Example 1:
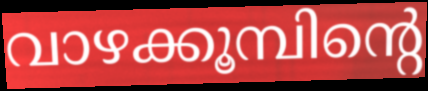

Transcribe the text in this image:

വാഴക്കൂമ്പിന്റെ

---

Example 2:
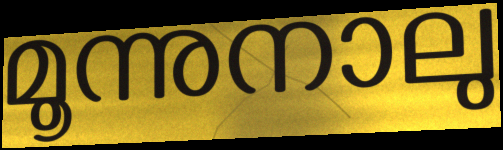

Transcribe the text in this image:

മൂന്നുനാലു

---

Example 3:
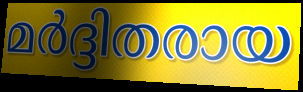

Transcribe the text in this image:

മർദ്ദിതരായ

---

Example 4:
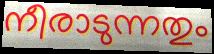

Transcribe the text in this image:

നീരാടുന്നതും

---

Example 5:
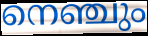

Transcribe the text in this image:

നെഞ്ചും